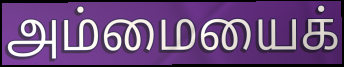
அம்மையைக்